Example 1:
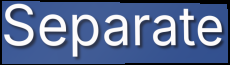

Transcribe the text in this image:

Separate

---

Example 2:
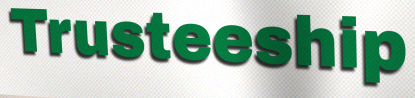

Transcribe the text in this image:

Trusteeship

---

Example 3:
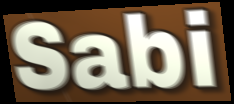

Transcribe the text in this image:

Sabi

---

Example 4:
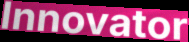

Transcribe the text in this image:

Innovator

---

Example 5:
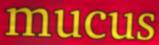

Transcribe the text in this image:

mucus